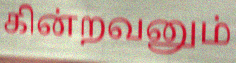
கின்றவனும்